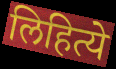
लिहित्ये